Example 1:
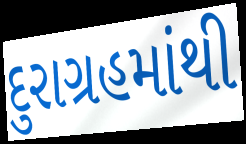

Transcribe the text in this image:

દુરાગ્રહમાંથી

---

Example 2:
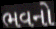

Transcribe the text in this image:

ભવનો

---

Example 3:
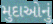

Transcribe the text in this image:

મુદાઓનું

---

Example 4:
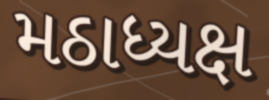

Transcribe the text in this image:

મઠાધ્યક્ષ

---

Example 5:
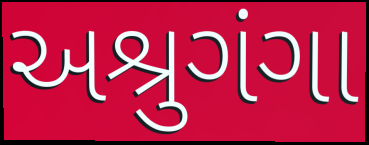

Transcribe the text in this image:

અશ્રુગંગા